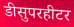
डीसुपरहीटर